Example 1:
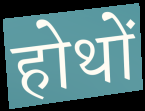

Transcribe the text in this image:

होथों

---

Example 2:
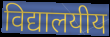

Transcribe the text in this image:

विद्यालयीय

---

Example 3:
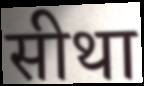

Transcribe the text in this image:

सीथा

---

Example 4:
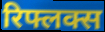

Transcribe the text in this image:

रिफ्लक्स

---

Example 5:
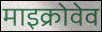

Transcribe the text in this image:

माइक्रोवेव